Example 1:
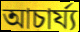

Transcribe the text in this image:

আচাৰ্য্য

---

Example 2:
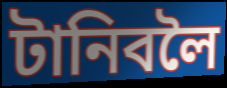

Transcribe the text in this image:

টানিবলৈ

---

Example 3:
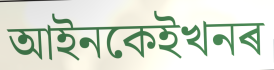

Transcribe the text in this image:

আইনকেইখনৰ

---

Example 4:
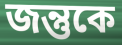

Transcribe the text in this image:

জন্তুকে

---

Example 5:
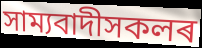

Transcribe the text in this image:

সাম্যবাদীসকলৰ